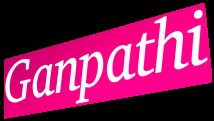
Ganpathi